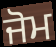
ਜੋਮ